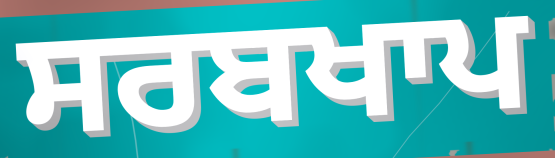
ਸਰਬਖਾਪ